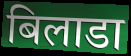
बिलाडा